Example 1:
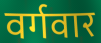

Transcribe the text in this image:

वर्गवार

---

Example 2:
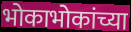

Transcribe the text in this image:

भोकाभोकांच्या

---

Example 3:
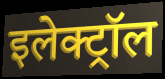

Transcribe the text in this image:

इलेक्ट्रॉल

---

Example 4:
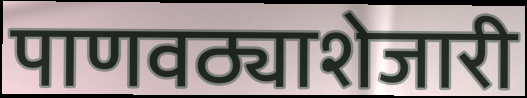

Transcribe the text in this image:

पाणवठ्याशेजारी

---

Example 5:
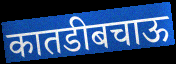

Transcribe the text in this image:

कातडीबचाऊ